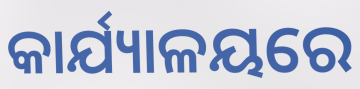
କାର୍ଯ୍ୟାଳୟରେ